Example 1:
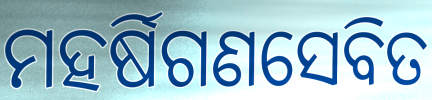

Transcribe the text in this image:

ମହର୍ଷିଗଣସେବିତ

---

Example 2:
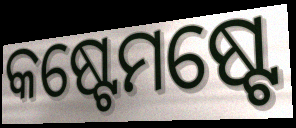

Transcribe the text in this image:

କଷ୍ଟେମଷ୍ଟେ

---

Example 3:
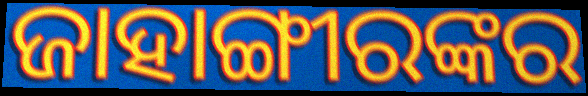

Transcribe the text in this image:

ଜାହାଙ୍ଗୀରଙ୍କର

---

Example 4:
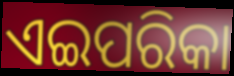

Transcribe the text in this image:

ଏଇପରିକା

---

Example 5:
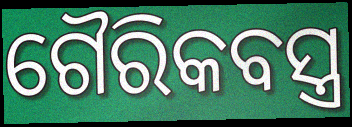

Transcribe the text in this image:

ଗୈରିକବସ୍ତ୍ର